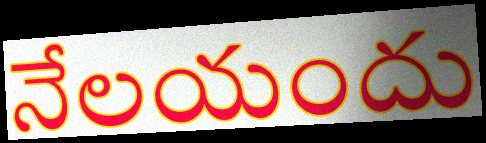
నేలయందు